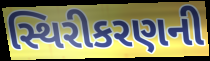
સ્થિરીકરણની